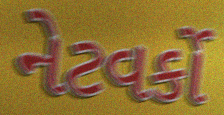
નેટવર્કો